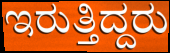
ಇರುತ್ತಿದ್ದರು